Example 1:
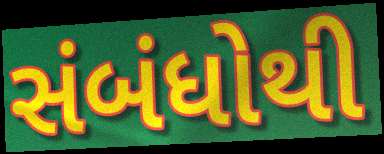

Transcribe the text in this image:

સંબંધોથી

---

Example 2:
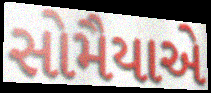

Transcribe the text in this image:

સોમૈયાએ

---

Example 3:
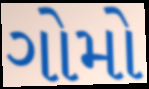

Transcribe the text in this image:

ગોમો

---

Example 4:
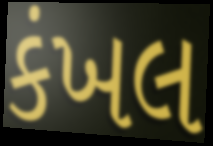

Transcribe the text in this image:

કંખલ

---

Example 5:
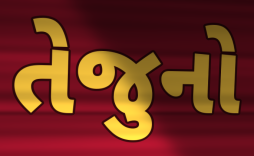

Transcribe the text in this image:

તેજુનો